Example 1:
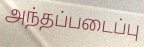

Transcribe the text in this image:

அந்தப்படைப்பு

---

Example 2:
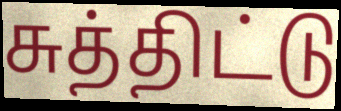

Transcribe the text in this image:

சுத்திட்டு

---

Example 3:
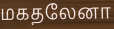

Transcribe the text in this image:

மகதலேனா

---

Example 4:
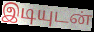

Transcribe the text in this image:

இடியுடன்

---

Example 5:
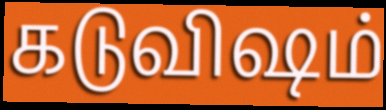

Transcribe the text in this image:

கடுவிஷம்